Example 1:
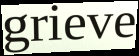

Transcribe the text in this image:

grieve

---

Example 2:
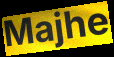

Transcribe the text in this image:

Majhe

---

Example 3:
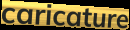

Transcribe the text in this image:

caricature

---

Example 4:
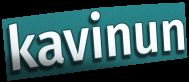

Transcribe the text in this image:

kavinun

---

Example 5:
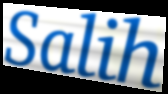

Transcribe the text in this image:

Salih